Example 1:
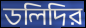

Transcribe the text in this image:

ডলিদির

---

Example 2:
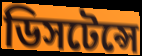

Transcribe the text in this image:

ডিসটেন্সে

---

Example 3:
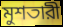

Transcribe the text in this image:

মুশতারী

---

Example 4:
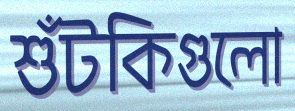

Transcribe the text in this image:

শুঁটকিগুলো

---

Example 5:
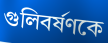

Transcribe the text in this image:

গুলিবর্ষণকে